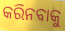
କରିନବାକୁ